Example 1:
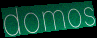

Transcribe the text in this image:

domos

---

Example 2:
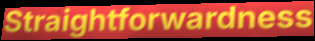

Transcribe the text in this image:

Straightforwardness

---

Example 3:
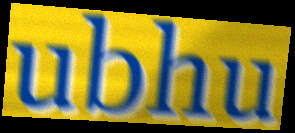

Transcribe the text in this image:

ubhu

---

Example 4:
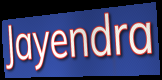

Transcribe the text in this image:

Jayendra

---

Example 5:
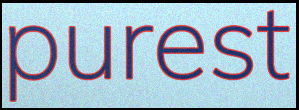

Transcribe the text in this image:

purest